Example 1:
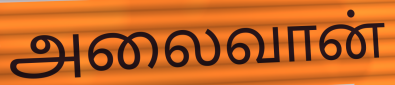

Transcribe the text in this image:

அலைவான்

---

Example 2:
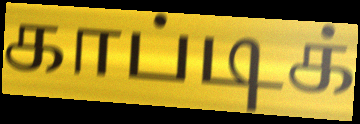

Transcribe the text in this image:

காப்டிக்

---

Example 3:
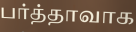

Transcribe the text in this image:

பர்த்தாவாக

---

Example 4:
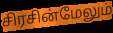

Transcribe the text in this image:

சிரசின்மேலும்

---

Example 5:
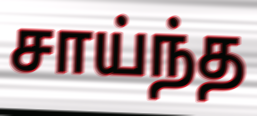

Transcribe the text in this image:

சாய்ந்த